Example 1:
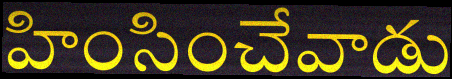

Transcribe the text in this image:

హింసించేవాడు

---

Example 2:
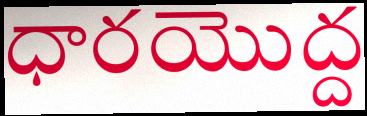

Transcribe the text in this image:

ధారయొద్ద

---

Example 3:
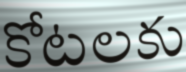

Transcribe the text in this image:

కోటలకు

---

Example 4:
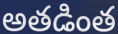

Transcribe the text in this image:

అతడింత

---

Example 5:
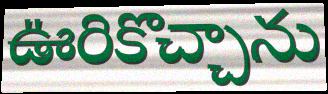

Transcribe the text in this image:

ఊరికొచ్చాను